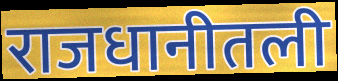
राजधानीतली